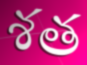
శత